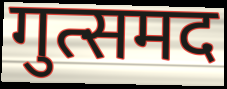
गुत्समद